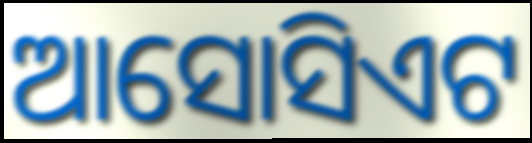
ଆସୋସିଏଟ